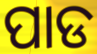
ପାଡ